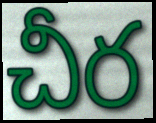
చీర